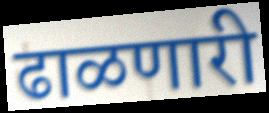
ढाळणारी